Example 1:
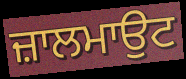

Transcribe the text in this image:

ਜ਼ਾਲਮਾਉਟ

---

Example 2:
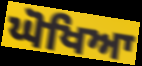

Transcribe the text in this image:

ਘੋਖਿਆ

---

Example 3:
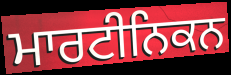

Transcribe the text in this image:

ਮਾਰਟੀਨਿਕਨ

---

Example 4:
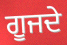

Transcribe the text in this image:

ਗੂਜਦੇ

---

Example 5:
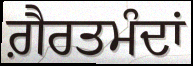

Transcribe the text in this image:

ਗ਼ੈਰਤਮੰਦਾਂ